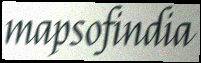
mapsofindia